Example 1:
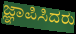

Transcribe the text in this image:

ಜ್ಞಾಪಿಸಿದರು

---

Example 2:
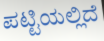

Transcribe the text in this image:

ಪಟ್ಟಿಯಲ್ಲಿದೆ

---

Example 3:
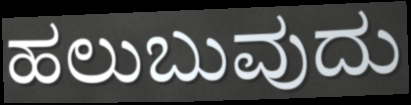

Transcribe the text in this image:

ಹಲುಬುವುದು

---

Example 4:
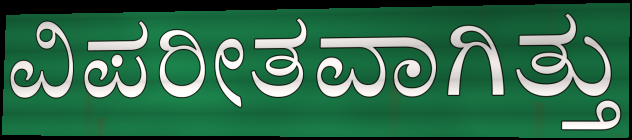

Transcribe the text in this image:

ವಿಪರೀತವಾಗಿತ್ತು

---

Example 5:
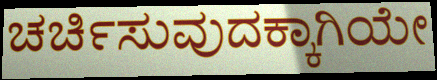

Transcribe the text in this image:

ಚರ್ಚಿಸುವುದಕ್ಕಾಗಿಯೇ